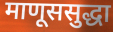
माणूससुद्धा